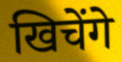
खिचेंगे